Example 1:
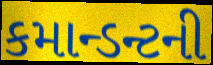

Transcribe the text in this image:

કમાન્ડન્ટની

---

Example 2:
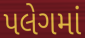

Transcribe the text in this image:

પલેગમાં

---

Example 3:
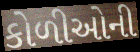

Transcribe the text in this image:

કોળીઓની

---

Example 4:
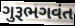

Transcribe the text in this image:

ગુરૂભગવંત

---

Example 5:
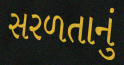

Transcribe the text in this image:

સરળતાનું